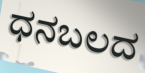
ಧನಬಲದ